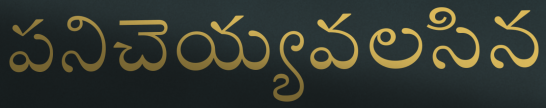
పనిచెయ్యవలసిన